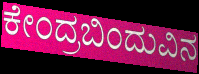
ಕೇಂದ್ರಬಿಂದುವಿನ